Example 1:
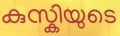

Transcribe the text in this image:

കുസ്കിയുടെ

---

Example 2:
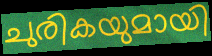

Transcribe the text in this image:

ചുരികയുമായി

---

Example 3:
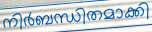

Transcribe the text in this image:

നിർബന്ധിതമാക്കി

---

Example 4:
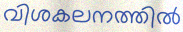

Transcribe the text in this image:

വിശകലനത്തിൽ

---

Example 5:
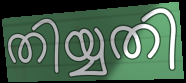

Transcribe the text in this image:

തിയ്യതി